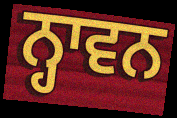
ਨ੍ਹਾਵਨ